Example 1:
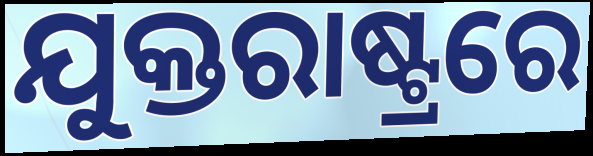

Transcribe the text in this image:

ଯୁକ୍ତରାଷ୍ଟ୍ରରେ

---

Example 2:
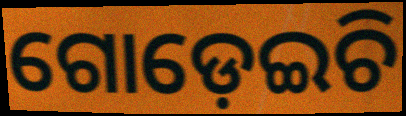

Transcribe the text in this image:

ଗୋଡ଼େଇଚି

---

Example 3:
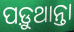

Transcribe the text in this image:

ପଡ଼ୁଥାନ୍ତା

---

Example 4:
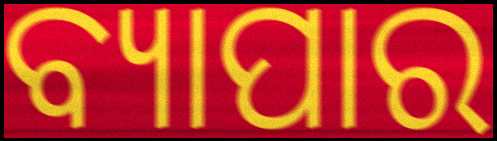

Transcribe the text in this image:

ବ୍ଯାପାର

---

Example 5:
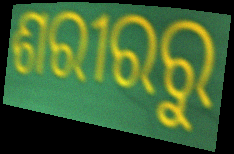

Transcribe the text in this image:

ଶରୀରରୁ